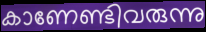
കാണേണ്ടിവരുന്നു